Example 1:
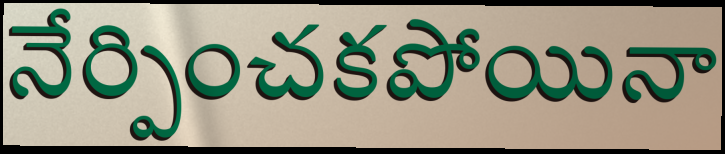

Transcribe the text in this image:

నేర్పించకపోయినా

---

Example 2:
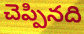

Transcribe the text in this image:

చెప్పినది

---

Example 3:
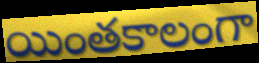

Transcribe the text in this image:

యింతకాలంగా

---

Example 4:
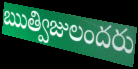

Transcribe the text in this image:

ఋత్విజులందరు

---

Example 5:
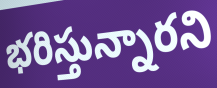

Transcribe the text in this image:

భరిస్తున్నారని